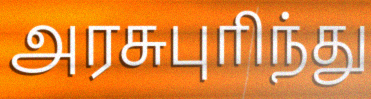
அரசுபுரிந்து